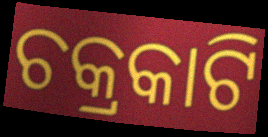
ଚକ୍ରକାଟି